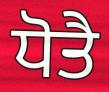
ਧੋਤੈ